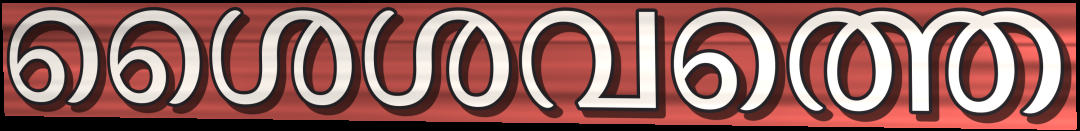
ശൈശവത്തെ